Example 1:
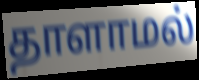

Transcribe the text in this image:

தாளாமல்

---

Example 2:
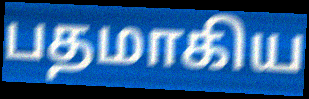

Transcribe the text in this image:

பதமாகிய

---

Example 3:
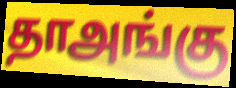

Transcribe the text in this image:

தாஅங்கு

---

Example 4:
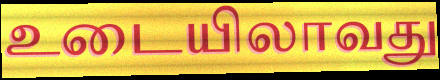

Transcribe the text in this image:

உடையிலாவது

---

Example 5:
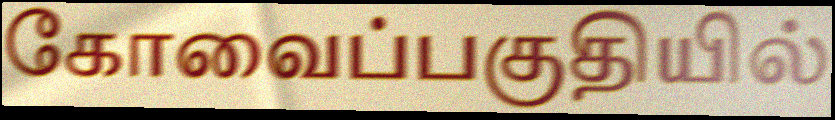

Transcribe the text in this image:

கோவைப்பகுதியில்